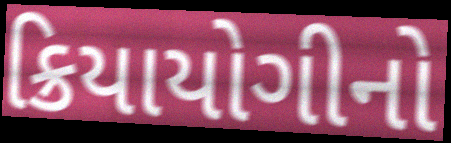
ક્રિયાયોગીનો